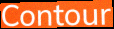
Contour